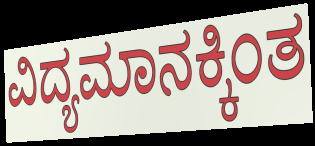
ವಿದ್ಯಮಾನಕ್ಕಿಂತ